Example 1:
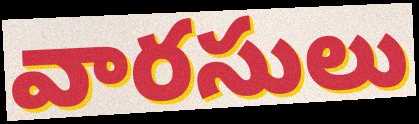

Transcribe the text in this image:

వారసులు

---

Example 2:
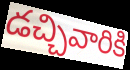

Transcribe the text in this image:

డచ్చివారికి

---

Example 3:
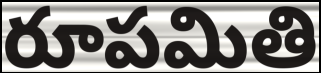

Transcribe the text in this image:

రూపమితి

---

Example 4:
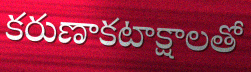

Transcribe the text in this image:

కరుణాకటాక్షాలతో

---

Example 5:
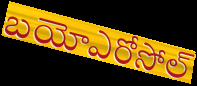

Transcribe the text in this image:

బయోఎరోసోల్